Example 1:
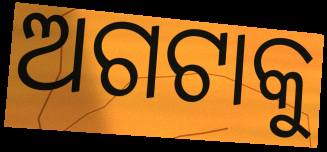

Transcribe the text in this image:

ଅଗଟାକୁ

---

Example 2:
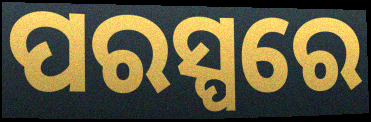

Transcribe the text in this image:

ପରସ୍ପରେ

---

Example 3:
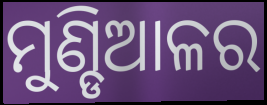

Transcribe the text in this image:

ମୁଣ୍ଡିଆଳର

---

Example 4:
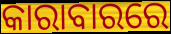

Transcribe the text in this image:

କାରାବାରରେ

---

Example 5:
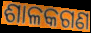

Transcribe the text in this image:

ଶାଳକଗଣ